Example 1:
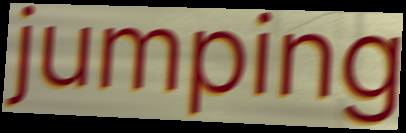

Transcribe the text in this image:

jumping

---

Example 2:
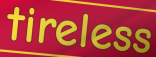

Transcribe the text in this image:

tireless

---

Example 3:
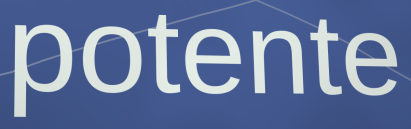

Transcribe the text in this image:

potente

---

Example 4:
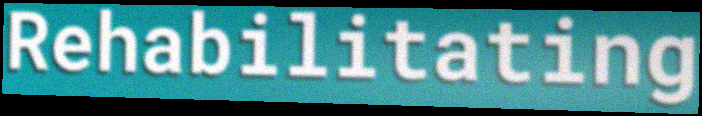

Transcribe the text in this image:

Rehabilitating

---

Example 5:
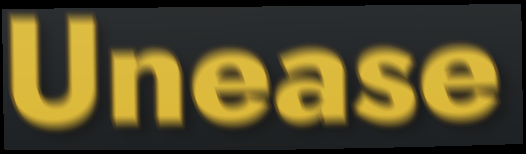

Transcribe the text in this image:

Unease